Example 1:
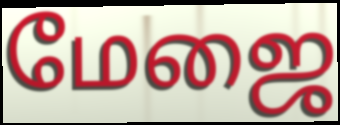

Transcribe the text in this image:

மேஜை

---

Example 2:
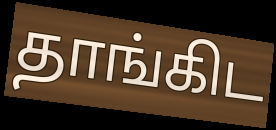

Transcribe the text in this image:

தாங்கிட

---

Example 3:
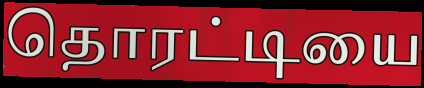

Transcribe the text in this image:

தொரட்டியை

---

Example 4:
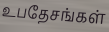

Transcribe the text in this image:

உபதேசங்கள்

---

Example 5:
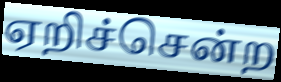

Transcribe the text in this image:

ஏறிச்சென்ற